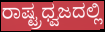
ರಾಷ್ಟ್ರಧ್ವಜದಲ್ಲಿ